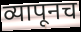
व्यापूनच